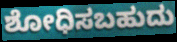
ಶೋಧಿಸಬಹುದು